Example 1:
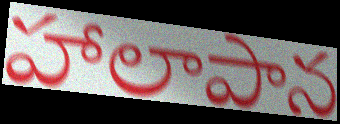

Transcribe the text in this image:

హాలాపాన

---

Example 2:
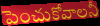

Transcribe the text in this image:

పెంచుకోవాలనీ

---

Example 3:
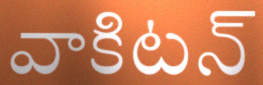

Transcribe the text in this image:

వాకిటన్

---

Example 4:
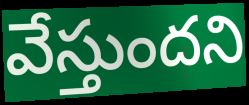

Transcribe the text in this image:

వేస్తుందని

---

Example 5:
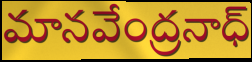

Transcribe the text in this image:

మానవేంద్రనాధ్